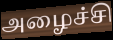
அழைச்சி